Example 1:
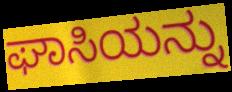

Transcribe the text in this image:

ಘಾಸಿಯನ್ನು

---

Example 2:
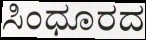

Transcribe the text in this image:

ಸಿಂಧೂರದ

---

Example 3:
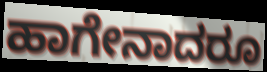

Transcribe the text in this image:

ಹಾಗೇನಾದರೂ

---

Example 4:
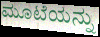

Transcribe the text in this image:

ಮೂಟೆಯನ್ನು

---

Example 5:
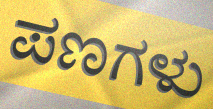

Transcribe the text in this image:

ಪಣಗಳು